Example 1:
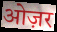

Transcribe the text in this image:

ओज़र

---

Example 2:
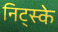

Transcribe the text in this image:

निट्स्के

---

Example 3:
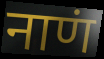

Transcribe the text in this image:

नाणं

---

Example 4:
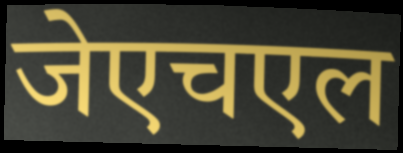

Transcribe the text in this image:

जेएचएल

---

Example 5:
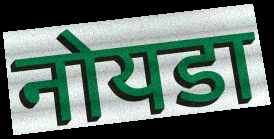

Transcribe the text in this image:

नोयडा